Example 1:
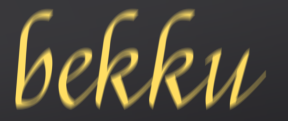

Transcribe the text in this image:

bekku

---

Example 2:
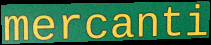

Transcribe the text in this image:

mercanti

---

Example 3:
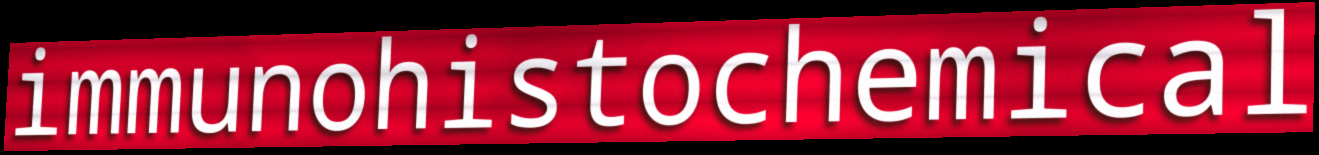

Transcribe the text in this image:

immunohistochemical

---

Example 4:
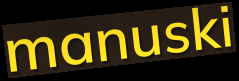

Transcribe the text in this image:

manuski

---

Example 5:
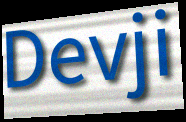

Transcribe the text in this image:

Devji